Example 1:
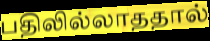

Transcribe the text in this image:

பதிலில்லாததால்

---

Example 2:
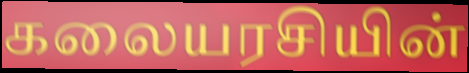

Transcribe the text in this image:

கலையரசியின்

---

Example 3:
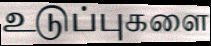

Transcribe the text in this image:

உடுப்புகளை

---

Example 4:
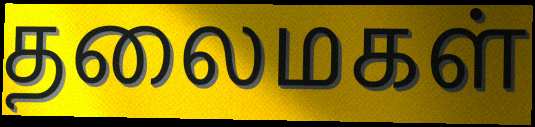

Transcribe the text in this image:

தலைமகள்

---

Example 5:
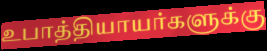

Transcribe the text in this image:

உபாத்தியாயர்களுக்கு